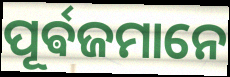
ପୂର୍ଵଜମାନେ